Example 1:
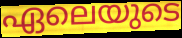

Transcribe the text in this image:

ഏലെയുടെ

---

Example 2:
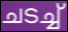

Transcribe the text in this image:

ചടച്ച്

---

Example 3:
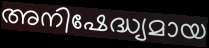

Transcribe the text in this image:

അനിഷേദ്ധ്യമായ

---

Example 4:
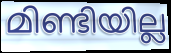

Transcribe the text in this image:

മിണ്ടിയില്ല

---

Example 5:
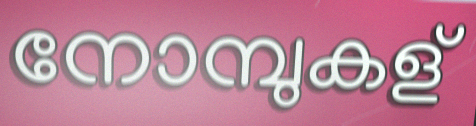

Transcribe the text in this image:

നോമ്പുകള്